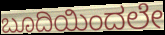
ಬೂದಿಯಿಂದಲೇ